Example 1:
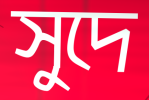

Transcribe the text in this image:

সুদে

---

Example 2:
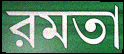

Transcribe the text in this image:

রমতা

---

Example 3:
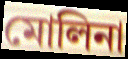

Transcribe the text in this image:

মোলিনা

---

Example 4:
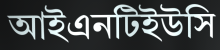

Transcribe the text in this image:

আইএনটিইউসি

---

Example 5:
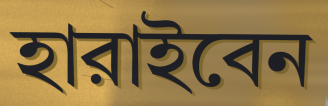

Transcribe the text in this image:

হারাইবেন